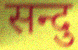
सन्दु